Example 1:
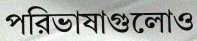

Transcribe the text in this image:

পরিভাষাগুলোও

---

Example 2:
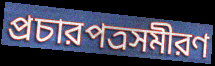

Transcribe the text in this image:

প্রচারপত্রসমীরণ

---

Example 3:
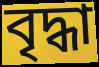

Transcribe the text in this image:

বৃদ্ধা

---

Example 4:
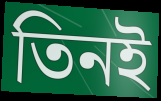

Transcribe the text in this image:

তিনই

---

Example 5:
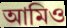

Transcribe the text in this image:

আমিও